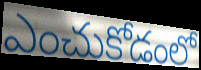
ఎంచుకోడంలో